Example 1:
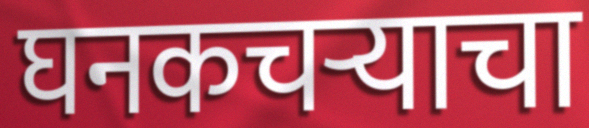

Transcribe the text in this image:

घनकचऱ्याचा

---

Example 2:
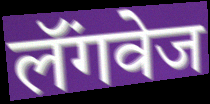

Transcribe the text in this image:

लॅंगवेज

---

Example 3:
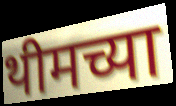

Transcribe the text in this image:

थीमच्या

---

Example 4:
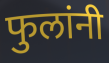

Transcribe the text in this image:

फुलांनी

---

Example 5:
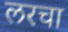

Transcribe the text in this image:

लरचा